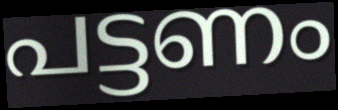
പട്ടണം